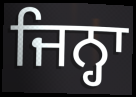
ਜਿਨ੍ਹ੍ਹਾ